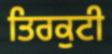
ਤਿਰਕੁਟੀ